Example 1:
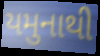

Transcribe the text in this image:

યમુનાથી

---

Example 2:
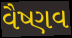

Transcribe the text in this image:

વૈષ્ણવ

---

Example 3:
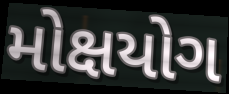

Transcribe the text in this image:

મોક્ષયોગ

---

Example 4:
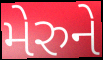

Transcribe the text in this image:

મેરુને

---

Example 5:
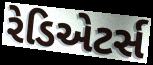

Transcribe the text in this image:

રેડિએટર્સ